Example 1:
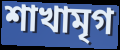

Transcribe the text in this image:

শাখামৃগ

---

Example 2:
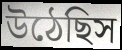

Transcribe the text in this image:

উঠেছিস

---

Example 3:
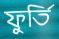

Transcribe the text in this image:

ফুর্তি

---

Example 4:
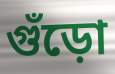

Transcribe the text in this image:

গুঁড়ো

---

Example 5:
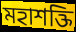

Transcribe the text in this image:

মহাশক্তি